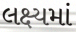
લક્ષ્યમાં